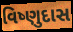
વિષ્ણુદાસ